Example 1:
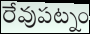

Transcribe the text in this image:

రేవుపట్నం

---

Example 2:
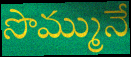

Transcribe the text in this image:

సొమ్మునే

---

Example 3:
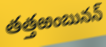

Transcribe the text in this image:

తత్తఱంబునన్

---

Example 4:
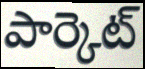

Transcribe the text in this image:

పార్కెట్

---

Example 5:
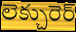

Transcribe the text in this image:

లెక్చురెర్